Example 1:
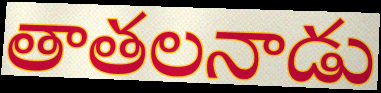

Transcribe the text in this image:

తాతలనాడు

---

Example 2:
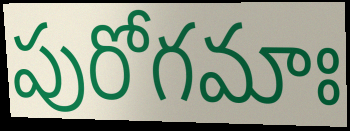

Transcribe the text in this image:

పురోగమాః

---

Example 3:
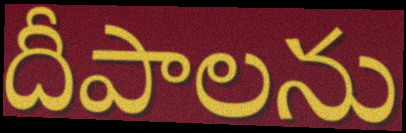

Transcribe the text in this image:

దీపాలను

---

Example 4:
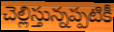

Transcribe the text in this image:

చెల్లిస్తున్నప్పటికీ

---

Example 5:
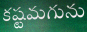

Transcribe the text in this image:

కష్టమగును